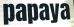
papaya